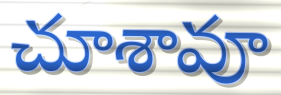
చూశావూ